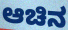
ಆಚಿನ